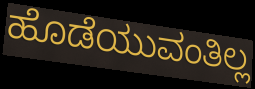
ಹೊಡೆಯುವಂತಿಲ್ಲ